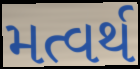
મત્વર્થ